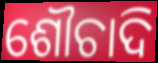
ଶୌଚାଦି